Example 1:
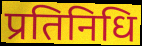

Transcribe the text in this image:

प्रतिनिधि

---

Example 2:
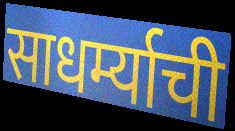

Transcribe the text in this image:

साधर्म्याची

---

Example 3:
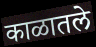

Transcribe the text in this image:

काळातले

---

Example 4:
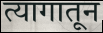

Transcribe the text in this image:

त्यागातून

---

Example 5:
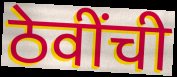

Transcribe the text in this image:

ठेवींची